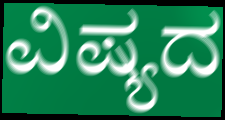
ವಿಷ್ಯದ